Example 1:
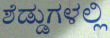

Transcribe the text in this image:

ಶೆಡ್ಡುಗಳಲ್ಲಿ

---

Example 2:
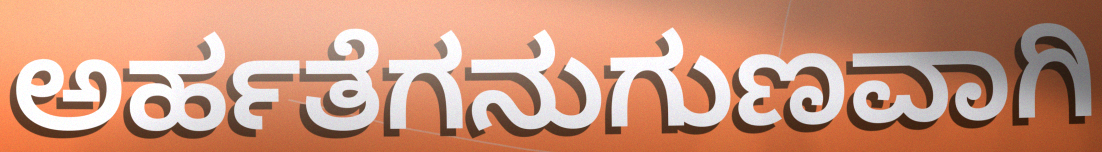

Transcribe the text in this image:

ಅರ್ಹತೆಗನುಗುಣವಾಗಿ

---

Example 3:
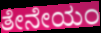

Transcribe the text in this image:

ತೇನೇಯಂ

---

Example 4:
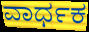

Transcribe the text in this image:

ವಾರ್ಧಕ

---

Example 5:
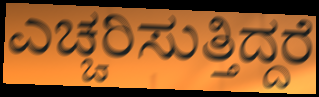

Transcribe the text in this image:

ಎಚ್ಚರಿಸುತ್ತಿದ್ದರೆ